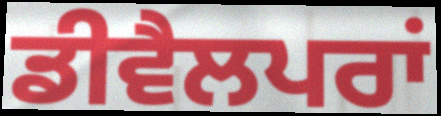
ਡੀਵੈਲਪਰਾਂ